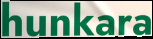
hunkara